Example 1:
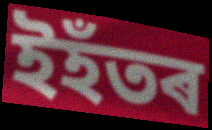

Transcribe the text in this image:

ইহঁতৰ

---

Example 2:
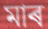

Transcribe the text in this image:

মাৰ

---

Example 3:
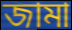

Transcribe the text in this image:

জামা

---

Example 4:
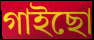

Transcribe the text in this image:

গাইছো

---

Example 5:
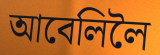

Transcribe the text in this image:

আবেলিলৈ